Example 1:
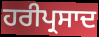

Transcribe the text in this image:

ਹਰੀਪ੍ਰਸਾਦ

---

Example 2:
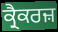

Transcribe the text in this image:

ਕ੍ਰੈਕਰਜ਼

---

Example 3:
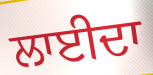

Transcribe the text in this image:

ਲਾਈਦਾ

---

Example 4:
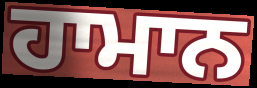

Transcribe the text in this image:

ਹਾਮਾਨ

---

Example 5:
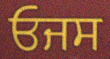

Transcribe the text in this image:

ਓਜਸ